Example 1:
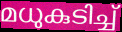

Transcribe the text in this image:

മധുകുടിച്ച്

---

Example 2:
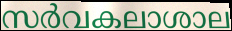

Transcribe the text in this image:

സർവകലാശാല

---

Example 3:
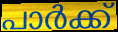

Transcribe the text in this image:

പാർക്ക്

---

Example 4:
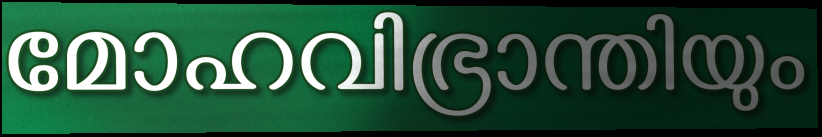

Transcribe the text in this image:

മോഹവിഭ്രാന്തിയും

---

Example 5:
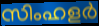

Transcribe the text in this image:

സിംഹളർ